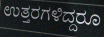
ಉತ್ತರಗಳಿದ್ದರೂ